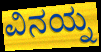
ವಿನಯ್ನ